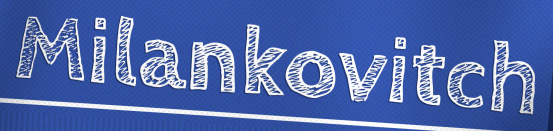
Milankovitch